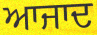
ਆਜਾਦ